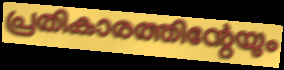
പ്രതികാരത്തിന്റേയും